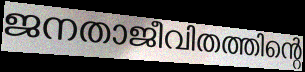
ജനതാജീവിതത്തിന്റെ